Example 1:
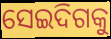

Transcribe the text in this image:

ସେଇଦିଗକୁ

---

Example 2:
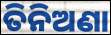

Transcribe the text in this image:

ତିନିଅଣା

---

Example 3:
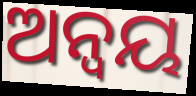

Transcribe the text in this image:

ଅନ୍ଵୟ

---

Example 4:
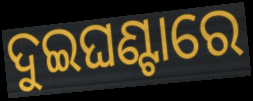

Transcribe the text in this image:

ଦୁଇଘଣ୍ଟାରେ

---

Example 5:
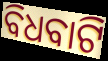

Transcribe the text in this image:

ବିଧବାଟି